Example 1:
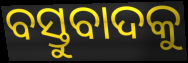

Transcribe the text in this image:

ବସ୍ତୁବାଦକୁ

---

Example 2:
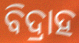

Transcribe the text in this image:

ବିଦ୍ରାହ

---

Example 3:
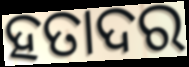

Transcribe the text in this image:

ହତାଦର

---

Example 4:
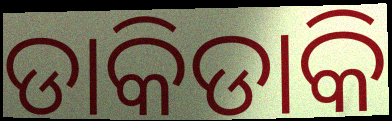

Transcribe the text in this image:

ଡାକିଡାକି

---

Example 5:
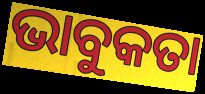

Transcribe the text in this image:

ଭାବୁକତା